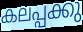
കലപ്പക്കു